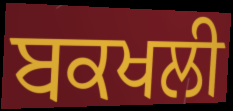
ਬਕਖਲੀ